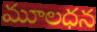
మూలధన